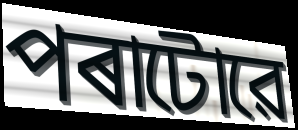
পৰাটোৱে